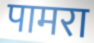
पामरा